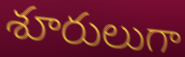
శూరులుగా